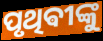
ପୃଥିଵୀଙ୍କୁ